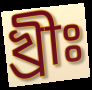
খ্রীঃ